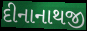
દીનાનાથજી